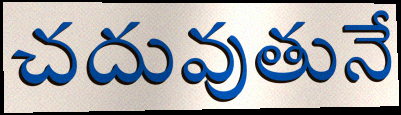
చదువుతునే